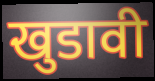
खुडावी